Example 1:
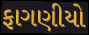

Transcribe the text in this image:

ફાગણીયો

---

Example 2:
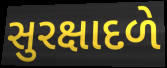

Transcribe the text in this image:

સુરક્ષાદળે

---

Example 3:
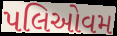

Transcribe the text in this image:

પલિઓવમ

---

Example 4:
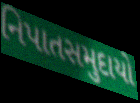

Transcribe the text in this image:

નિપાતસમુદાયો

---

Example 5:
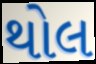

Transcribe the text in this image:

થોલ